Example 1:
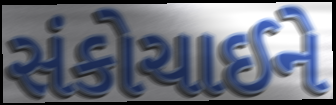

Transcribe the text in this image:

સંકોચાઈને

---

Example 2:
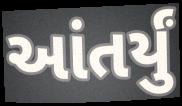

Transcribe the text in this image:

આંતર્યું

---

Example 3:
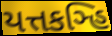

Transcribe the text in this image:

યત્તકઞ્હિ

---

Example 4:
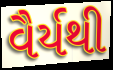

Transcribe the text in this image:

વૈર્યથી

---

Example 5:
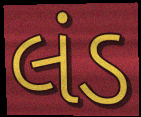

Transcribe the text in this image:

લંડ